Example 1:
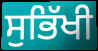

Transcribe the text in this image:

ਸੁਭਿੱਖੀ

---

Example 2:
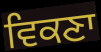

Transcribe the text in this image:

ਵਿਕਣਾ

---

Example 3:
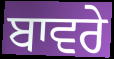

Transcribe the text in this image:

ਬਾਵਰੇ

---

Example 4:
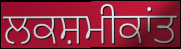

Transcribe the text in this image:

ਲਕਸ਼ਮੀਕਾਂਤ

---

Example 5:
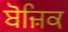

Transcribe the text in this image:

ਬੋਜ਼ਿਕ